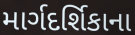
માર્ગદર્શિકાના